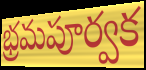
భ్రమపూర్వక